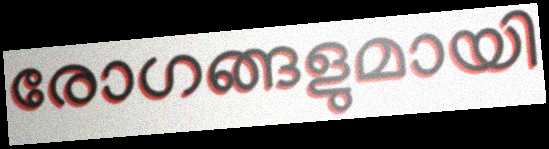
രോഗങ്ങളുമായി